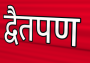
द्वैतपण